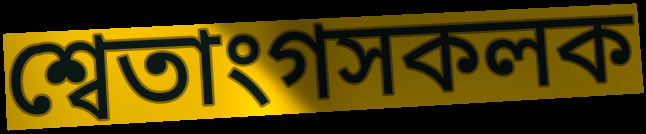
শ্বেতাংগসকলক